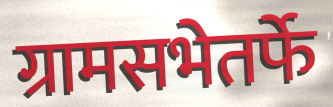
ग्रामसभेतर्फे